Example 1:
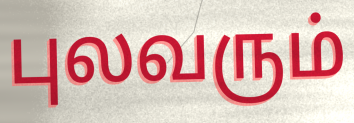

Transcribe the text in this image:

புலவரும்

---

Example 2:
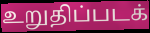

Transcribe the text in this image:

உறுதிப்படக்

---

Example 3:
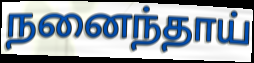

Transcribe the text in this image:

நனைந்தாய்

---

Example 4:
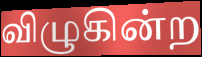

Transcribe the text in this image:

விழுகின்ற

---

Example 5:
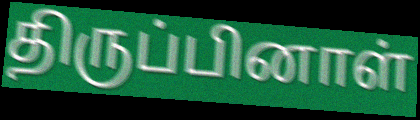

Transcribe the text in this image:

திருப்பினாள்